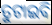
ତୁଟାଇବି